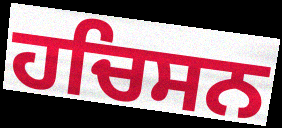
ਹਚਿਸਨ